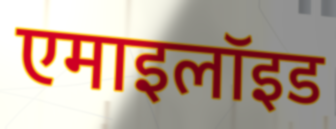
एमाइलॉइड